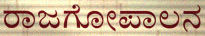
ರಾಜಗೋಪಾಲನ